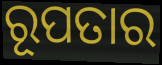
ରୂପତାର